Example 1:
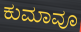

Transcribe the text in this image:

ಕುಮಾವೂ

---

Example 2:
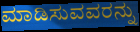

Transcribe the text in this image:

ಮಾಡಿಸುವವರನ್ನು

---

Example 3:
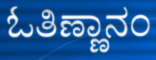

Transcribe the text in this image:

ಓತಿಣ್ಣಾನಂ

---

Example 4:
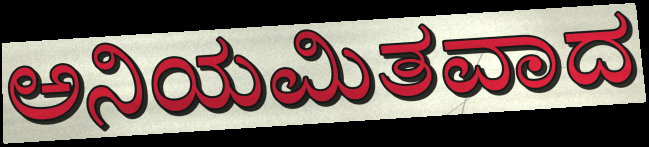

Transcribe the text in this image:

ಅನಿಯಮಿತವಾದ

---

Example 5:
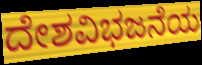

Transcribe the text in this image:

ದೇಶವಿಭಜನೆಯ